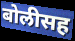
बोलीसह